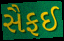
સૈફઈ